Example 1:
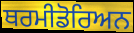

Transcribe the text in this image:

ਥਰਮੀਡੋਰਿਅਨ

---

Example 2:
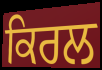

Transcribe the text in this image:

ਕਿਰਲ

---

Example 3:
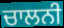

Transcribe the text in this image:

ਚਾਲਨੀ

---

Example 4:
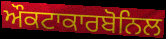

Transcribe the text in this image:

ਔਕਟਾਕਾਰਬੋਨਿਲ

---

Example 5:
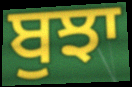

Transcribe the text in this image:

ਬੁਝਾ